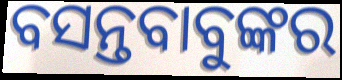
ବସନ୍ତବାବୁଙ୍କର